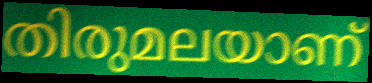
തിരുമലയാണ്